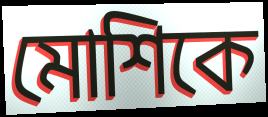
মোশিকে